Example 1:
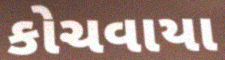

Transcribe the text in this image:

કોચવાયા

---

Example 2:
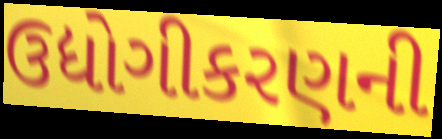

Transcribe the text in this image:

ઉદ્યોગીકરણની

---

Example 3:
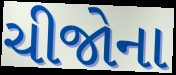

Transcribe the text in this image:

ચીજોના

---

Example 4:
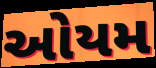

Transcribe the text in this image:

ઓયમ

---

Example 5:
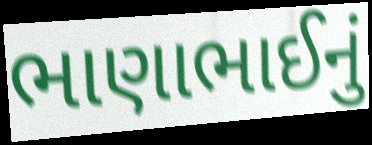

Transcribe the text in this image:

ભાણાભાઈનું